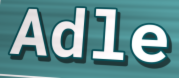
Adle